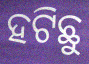
ହଟିଛୁ